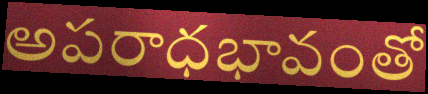
అపరాధభావంతో